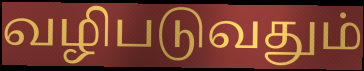
வழிபடுவதும்